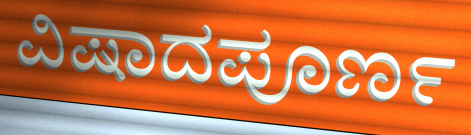
ವಿಷಾದಪೂರ್ಣ